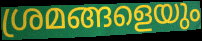
ശ്രമങ്ങളെയും